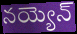
నయ్యెన్